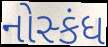
નોસ્કંધ